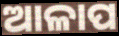
ଆଳାପ